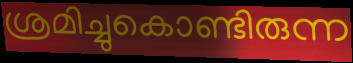
ശ്രമിച്ചുകൊണ്ടിരുന്ന